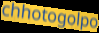
chhotogolpo